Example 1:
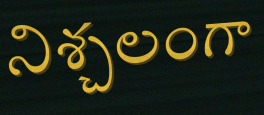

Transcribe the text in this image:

నిశ్చలంగా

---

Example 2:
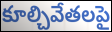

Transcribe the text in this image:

కూల్చివేతలపై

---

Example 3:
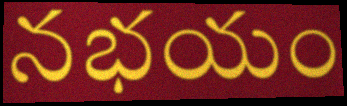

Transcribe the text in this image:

నభయం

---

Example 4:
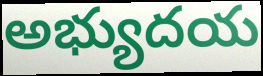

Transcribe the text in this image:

అభ్యుదయ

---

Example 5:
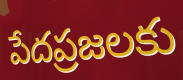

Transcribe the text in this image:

పేదప్రజలకు